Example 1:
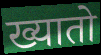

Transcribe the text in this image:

ख्यातो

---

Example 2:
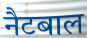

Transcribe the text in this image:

नैटबाल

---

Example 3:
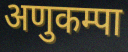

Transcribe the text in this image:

अणुकम्पा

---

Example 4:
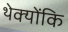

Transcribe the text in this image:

थेक्योंकि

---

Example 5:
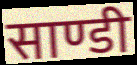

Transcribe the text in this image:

साण्डी